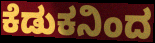
ಕೆಡುಕನಿಂದ